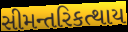
સીમન્તરિકત્થાય